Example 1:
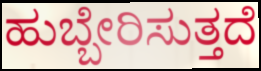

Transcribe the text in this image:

ಹುಬ್ಬೇರಿಸುತ್ತದೆ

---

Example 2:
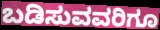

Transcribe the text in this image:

ಬಡಿಸುವವರಿಗೂ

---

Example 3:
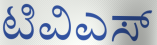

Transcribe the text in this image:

ಟಿವಿಎಸ್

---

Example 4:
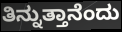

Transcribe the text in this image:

ತಿನ್ನುತ್ತಾನೆಂದು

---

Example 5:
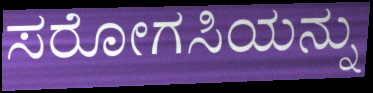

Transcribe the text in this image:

ಸರೋಗಸಿಯನ್ನು